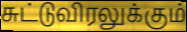
சுட்டுவிரலுக்கும்